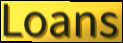
Loans